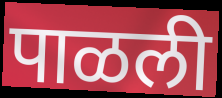
पाळली